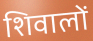
शिवालों